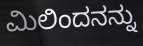
ಮಿಲಿಂದನನ್ನು